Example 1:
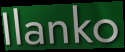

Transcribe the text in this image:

Ilanko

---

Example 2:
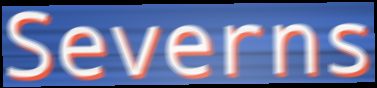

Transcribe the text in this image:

Severns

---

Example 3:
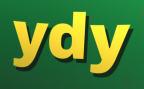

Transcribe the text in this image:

ydy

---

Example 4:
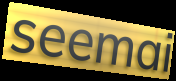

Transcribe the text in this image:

seemai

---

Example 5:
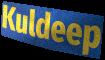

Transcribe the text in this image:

Kuldeep